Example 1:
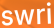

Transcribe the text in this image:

swri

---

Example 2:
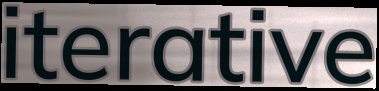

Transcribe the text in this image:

iterative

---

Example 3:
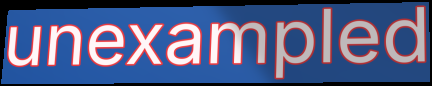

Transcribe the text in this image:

unexampled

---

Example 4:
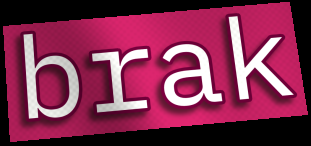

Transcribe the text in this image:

brak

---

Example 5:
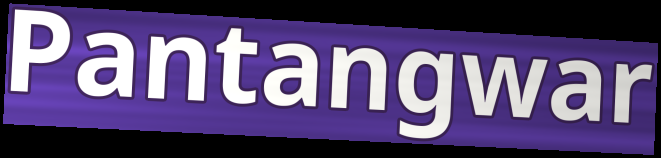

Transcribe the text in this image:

Pantangwar